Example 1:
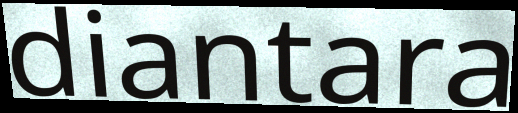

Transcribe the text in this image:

diantara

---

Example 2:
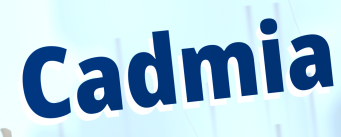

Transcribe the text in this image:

Cadmia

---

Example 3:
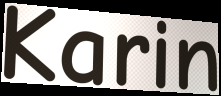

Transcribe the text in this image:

Karin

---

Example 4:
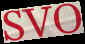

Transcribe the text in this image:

SVO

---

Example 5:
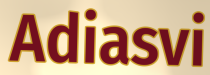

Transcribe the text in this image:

Adiasvi